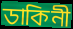
ডাকিনী